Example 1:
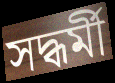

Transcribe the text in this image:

সদ্ধর্মী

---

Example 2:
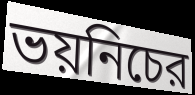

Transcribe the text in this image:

ভয়নিচের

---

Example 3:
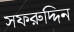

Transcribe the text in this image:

সফরুদ্দিন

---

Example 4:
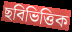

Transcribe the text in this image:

ছবিভিত্তিক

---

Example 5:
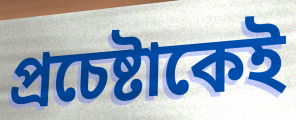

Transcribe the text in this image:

প্রচেষ্টাকেই